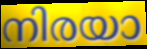
നിരയാ